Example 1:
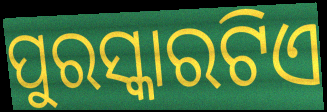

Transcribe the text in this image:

ପୁରସ୍କାରଟିଏ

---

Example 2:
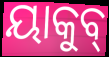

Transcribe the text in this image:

ୟାକୁବ୍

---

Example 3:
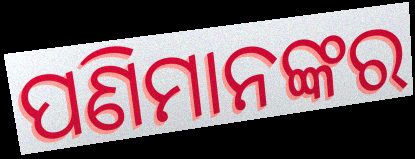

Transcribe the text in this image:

ପଣିମାନଙ୍କର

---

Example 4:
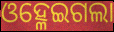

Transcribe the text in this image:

ଓହ୍ଳେଇଗଲା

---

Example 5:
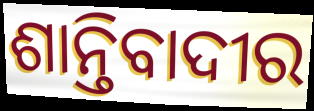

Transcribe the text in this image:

ଶାନ୍ତିବାଦୀର